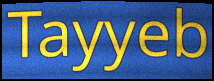
Tayyeb